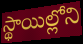
స్థాయిల్లోని